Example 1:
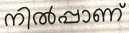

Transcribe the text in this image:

നിൽപ്പാണ്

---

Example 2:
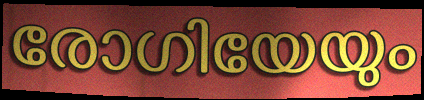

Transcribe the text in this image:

രോഗിയേയും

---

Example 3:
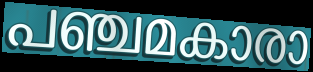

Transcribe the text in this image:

പഞ്ചമകാരാ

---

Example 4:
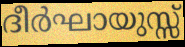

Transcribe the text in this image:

ദീർഘായുസ്സ്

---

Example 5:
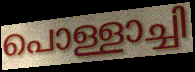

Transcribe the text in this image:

പൊള്ളാച്ചി